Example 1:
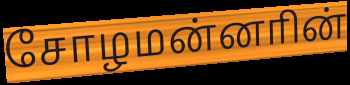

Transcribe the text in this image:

சோழமன்னரின்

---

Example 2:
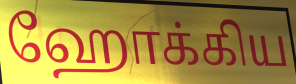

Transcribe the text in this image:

ஹோக்கிய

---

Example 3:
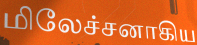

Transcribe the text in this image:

மிலேச்சனாகிய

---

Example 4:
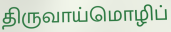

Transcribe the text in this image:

திருவாய்மொழிப்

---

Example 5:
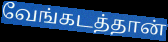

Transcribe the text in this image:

வேங்கடத்தான்